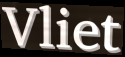
Vliet